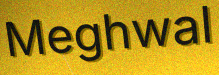
Meghwal